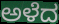
ಅಳೆದ